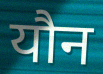
यौन